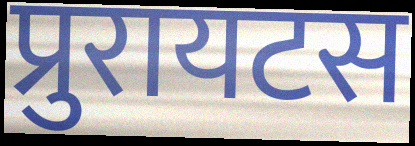
प्रुरायटस